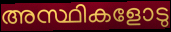
അസ്ഥികളോടു